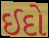
ઈદો